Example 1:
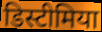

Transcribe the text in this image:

डिस्टीमिया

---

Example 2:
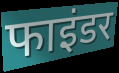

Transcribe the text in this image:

फाइंडर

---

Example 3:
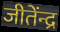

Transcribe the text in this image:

जीतेंन्द्र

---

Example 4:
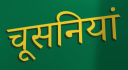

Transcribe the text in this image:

चूसनियां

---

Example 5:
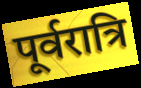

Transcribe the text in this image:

पूर्वरात्रि